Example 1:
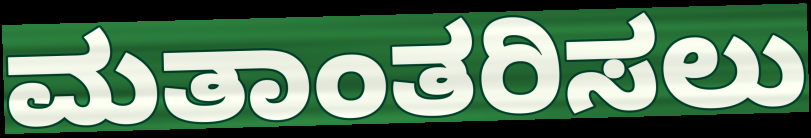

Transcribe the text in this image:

ಮತಾಂತರಿಸಲು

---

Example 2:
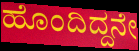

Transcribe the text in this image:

ಹೊಂದಿದ್ದನೇ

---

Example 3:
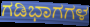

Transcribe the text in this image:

ಗಡಿಭಾಗಗಳ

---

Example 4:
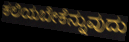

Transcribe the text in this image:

ಕಲಿಯಬೇಕೆನ್ನುವುದು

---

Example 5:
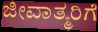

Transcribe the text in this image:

ಜೀವಾತ್ಮರಿಗೆ